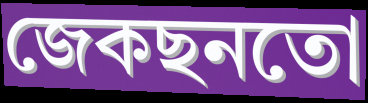
জেকছনতো